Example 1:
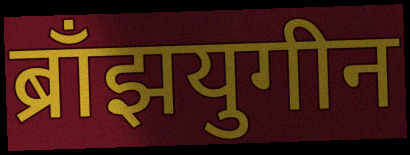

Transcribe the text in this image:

ब्राँझयुगीन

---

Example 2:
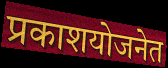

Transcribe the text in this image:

प्रकाशयोजनेत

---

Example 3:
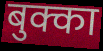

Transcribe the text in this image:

बुक्का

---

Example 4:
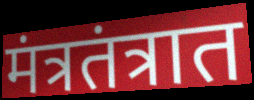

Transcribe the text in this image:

मंत्रतंत्रात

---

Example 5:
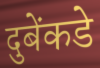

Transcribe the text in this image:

दुबेंकडे